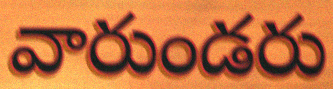
వారుండరు